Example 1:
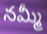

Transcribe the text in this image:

నమ్మీ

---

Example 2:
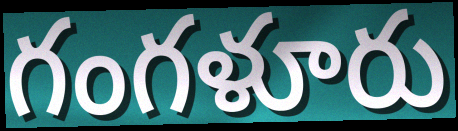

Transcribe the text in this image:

గంగళూరు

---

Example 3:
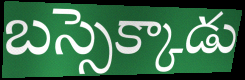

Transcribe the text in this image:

బస్సెక్కాడు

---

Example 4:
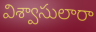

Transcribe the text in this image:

విశ్వాసులారా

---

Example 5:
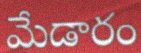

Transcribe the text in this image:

మేడారం